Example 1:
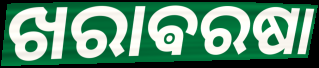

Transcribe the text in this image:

ଖରାଵରଷା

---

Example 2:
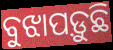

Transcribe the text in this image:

ବୁଝାପଡ଼ୁଛି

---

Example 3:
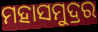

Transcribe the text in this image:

ମହାସମୁଦ୍ରର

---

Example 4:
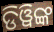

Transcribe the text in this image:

ଡିୱିଙ୍କ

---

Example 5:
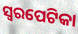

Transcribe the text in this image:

ସ୍ୱରପେଟିକା